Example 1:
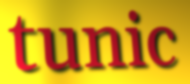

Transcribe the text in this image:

tunic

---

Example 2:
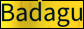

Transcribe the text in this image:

Badagu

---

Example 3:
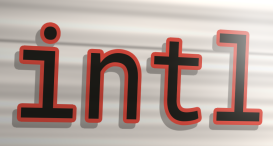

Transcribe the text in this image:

intl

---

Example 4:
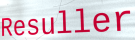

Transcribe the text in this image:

Resuller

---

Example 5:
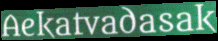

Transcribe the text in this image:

Aekatvadasak